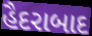
હૈદરાબાદ